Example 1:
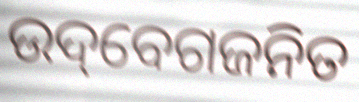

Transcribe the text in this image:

ଉଦ୍‌ବେଗଜନିତ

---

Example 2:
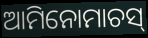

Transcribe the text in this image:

ଆମିନୋମାଚସ୍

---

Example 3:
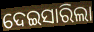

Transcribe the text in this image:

ଦେଇସାରିଲା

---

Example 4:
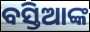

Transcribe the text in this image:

ବସ୍ତିଆଙ୍କ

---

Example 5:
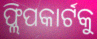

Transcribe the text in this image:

ଫ୍ଲିପକାର୍ଟକୁ